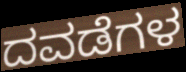
ದವಡೆಗಳ